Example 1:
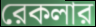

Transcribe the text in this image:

রেকলার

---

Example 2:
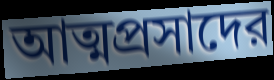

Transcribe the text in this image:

আত্মপ্রসাদের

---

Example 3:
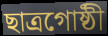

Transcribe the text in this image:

ছাত্রগোষ্ঠী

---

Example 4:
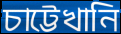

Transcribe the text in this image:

চাট্টেখানি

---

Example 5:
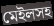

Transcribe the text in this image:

মেইলসহ